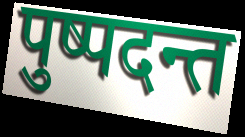
पुष्पदन्त